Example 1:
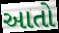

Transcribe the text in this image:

આતો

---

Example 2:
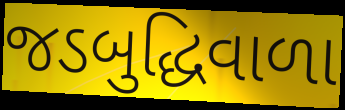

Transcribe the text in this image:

જડબુદ્ધિવાળા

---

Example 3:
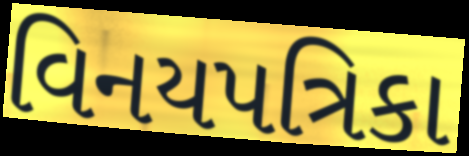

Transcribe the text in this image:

વિનયપત્રિકા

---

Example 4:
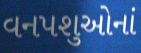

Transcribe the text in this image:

વનપશુઓનાં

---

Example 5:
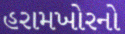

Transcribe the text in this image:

હરામખોરનો